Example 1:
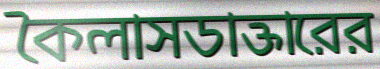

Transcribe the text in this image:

কৈলাসডাক্তারের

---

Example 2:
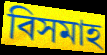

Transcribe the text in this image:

বিসমাহ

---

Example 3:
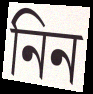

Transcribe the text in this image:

নিন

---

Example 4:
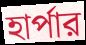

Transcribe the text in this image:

হার্পার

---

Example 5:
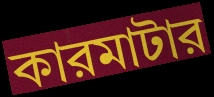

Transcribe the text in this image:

কারমাটার